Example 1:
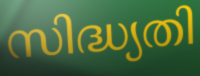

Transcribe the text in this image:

സിദ്ധ്യതി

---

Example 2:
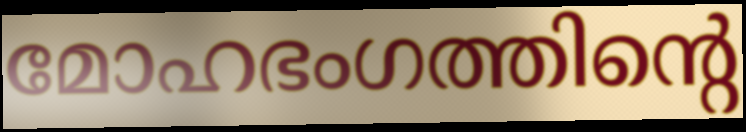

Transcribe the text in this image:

മോഹഭംഗത്തിന്റെ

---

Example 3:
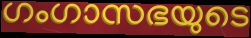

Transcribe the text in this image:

ഗംഗാസഭയുടെ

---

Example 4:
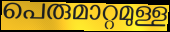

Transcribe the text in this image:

പെരുമാറ്റമുള്ള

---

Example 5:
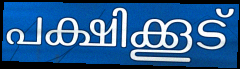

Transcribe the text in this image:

പക്ഷിക്കൂട്